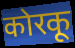
कोरकू